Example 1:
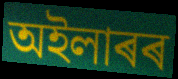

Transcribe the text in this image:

অইলাৰৰ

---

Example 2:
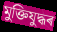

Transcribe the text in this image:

মুক্তিযুদ্ধৰ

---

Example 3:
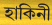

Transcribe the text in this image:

হাকিনী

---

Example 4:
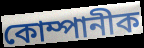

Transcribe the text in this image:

কোম্পানীক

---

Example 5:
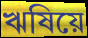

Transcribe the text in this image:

ঋষিয়ে